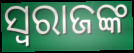
ସ୍ୱରାଜଙ୍କ